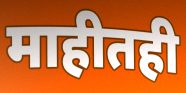
माहीतही